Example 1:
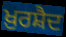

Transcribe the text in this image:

ਖ਼ੁਰਸ਼ੈਦ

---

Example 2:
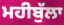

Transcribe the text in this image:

ਮਹੀਬੁੱਲਾ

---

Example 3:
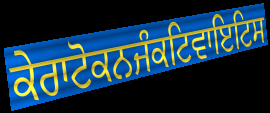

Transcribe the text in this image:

ਕੇਰਾਟੋਕਨਜੰਕਟਿਵਾਇਟਿਸ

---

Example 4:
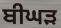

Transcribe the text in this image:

ਬੀਘੜ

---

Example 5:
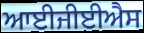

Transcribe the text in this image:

ਆਈਜੀਈਐਸ